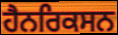
ਹੈਨਰਿਕਸਨ